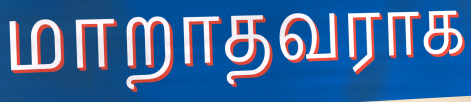
மாறாதவராக